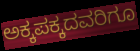
ಅಕ್ಕಪಕ್ಕದವರಿಗೂ